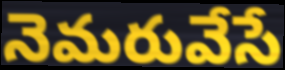
నెమరువేసే